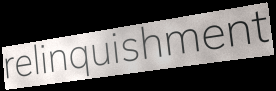
relinquishment